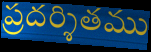
ప్రదర్శితము